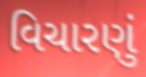
વિચારણું